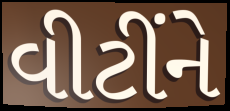
વીટીંને